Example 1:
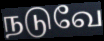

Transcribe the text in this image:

நடுவே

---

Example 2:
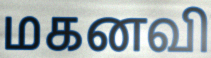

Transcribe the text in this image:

மகனவி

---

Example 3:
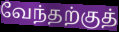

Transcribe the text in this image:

வேந்தற்குத்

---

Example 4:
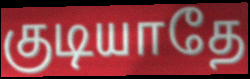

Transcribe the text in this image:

குடியாதே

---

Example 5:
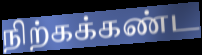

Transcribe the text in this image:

நிற்கக்கண்ட